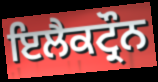
ਇਲੈਕਟ੍ਰੌਨ